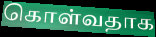
கொள்வதாக